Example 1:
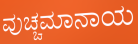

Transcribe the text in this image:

ವುಚ್ಚಮಾನಾಯ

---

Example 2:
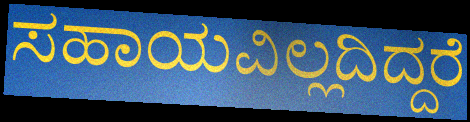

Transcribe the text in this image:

ಸಹಾಯವಿಲ್ಲದಿದ್ದರೆ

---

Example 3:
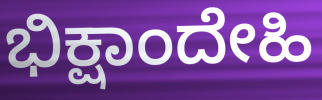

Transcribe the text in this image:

ಭಿಕ್ಷಾಂದೇಹಿ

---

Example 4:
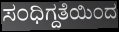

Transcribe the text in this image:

ಸಂಧಿಗ್ದತೆಯಿಂದ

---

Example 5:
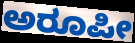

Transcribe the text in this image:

ಅರೂಪೀ